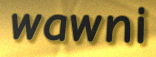
wawni